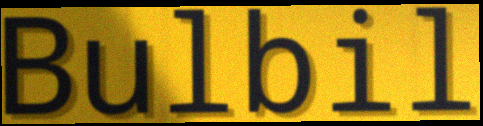
Bulbil